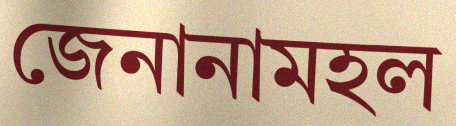
জেনানামহল